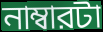
নাম্বারটা